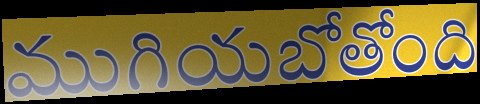
ముగియబోతోంది